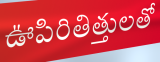
ఊపిరితిత్తులతో